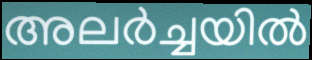
അലർച്ചയിൽ